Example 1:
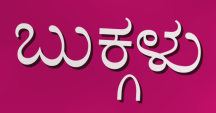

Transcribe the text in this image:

ಬುಕ್ಗಳು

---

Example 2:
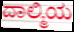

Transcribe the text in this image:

ದಾಲ್ಮಿಯ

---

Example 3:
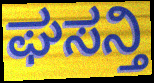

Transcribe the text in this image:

ಘಸನ್ತಿ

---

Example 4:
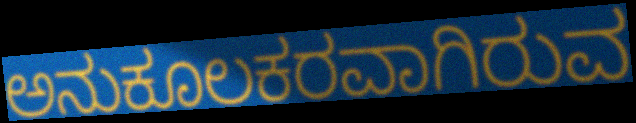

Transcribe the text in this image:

ಅನುಕೂಲಕರವಾಗಿರುವ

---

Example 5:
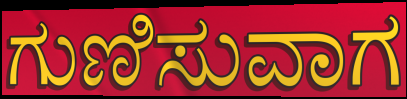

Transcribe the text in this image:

ಗುಣಿಸುವಾಗ